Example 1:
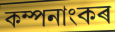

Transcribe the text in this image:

কম্পনাংকৰ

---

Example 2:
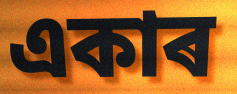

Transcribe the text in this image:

একাৰ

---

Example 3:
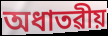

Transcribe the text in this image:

অধাতৱীয়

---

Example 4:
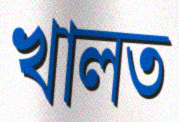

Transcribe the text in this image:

খালত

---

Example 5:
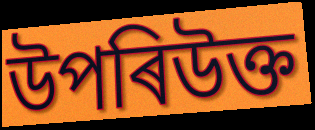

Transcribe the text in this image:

উপৰিউক্ত